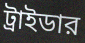
ট্রাইডার